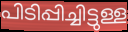
പിടിപ്പിച്ചിട്ടുള്ള